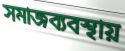
সমাজব্যবস্থায়